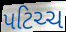
પટિચ્ચ